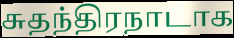
சுதந்திரநாடாக